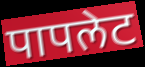
पापलेट